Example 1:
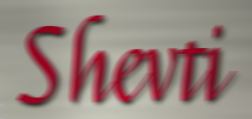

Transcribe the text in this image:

Shevti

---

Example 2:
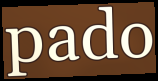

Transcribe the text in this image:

pado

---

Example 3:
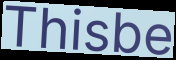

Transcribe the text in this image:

Thisbe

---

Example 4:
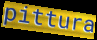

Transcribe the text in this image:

pittura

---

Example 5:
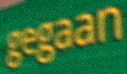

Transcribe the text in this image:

gegaan